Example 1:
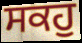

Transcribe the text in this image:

ਸਕਹੁ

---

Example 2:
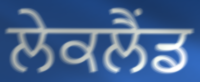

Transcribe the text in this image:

ਲੇਕਲੈਂਡ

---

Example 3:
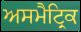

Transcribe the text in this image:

ਅਸਮੈਟ੍ਰਿਕ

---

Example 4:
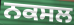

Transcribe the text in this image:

ਨਕਸਲ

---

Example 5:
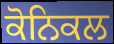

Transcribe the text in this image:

ਕੋਨਿਕਲ